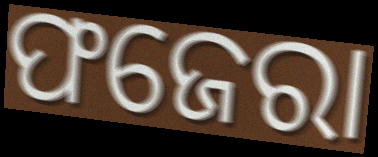
ଫଜେରା